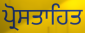
ਪ੍ਰੋਸਤਾਹਿਤ